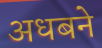
अधबने